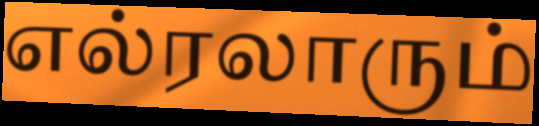
எல்ரலாரும்